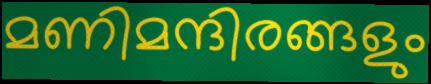
മണിമന്ദിരങ്ങളും